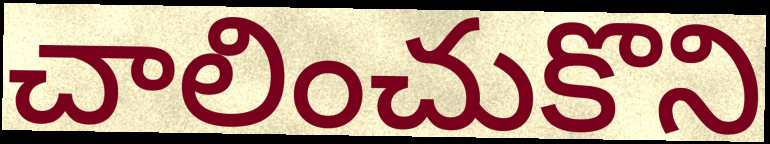
చాలించుకొని